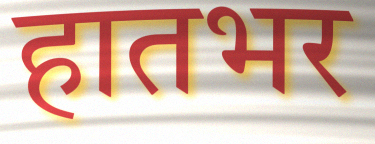
हातभर